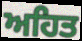
ਅਹਿਤ